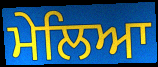
ਮੇਲਿਆ